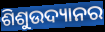
ଶିଶୁଉଦ୍ୟାନର